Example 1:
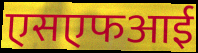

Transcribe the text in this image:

एसएफआई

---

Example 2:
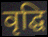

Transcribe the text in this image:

वृद्घि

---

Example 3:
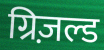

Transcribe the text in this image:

ग्रिज़ल्ड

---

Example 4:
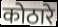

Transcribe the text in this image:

कोठारे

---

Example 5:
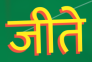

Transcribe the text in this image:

जीते